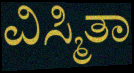
ವಿಸ್ಮಿತಾ